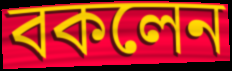
বকলেন